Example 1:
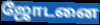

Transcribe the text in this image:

ஜோடனை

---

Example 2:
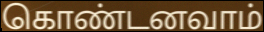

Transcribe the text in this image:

கொண்டனவாம்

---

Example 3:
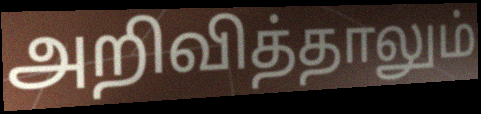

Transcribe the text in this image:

அறிவித்தாலும்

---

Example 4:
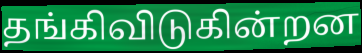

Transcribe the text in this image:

தங்கிவிடுகின்றன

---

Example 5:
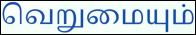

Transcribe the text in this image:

வெறுமையும்